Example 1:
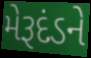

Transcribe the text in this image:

મેરૂદંડને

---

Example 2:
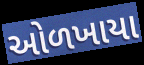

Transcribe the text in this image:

ઓળખાયા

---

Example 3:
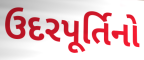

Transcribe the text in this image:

ઉદરપૂર્તિનો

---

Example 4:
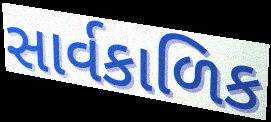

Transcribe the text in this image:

સાર્વકાળિક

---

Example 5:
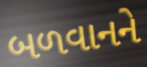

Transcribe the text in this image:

બળવાનને